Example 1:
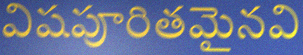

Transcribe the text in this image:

విషపూరితమైనవి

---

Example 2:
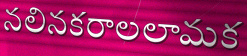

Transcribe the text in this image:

నలినకరాలలామక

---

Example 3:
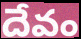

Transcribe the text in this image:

దేవం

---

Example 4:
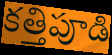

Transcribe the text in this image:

కత్తిపూడి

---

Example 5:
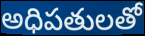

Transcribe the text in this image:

అధిపతులతో